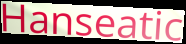
Hanseatic